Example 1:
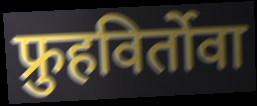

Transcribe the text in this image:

फ्रुहविर्तोवा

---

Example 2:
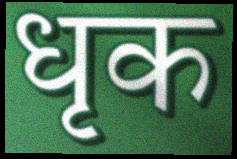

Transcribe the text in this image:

धृक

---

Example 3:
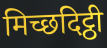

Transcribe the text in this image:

मिच्छदिट्ठी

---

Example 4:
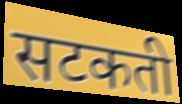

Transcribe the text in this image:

सटकती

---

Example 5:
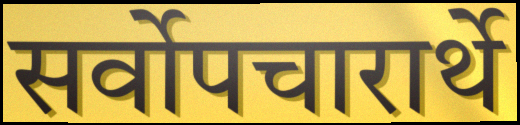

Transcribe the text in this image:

सर्वोपचारार्थे